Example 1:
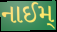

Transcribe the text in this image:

નાઈમ્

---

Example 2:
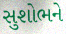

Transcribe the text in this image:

સુશોભને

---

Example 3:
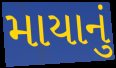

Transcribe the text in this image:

માયાનું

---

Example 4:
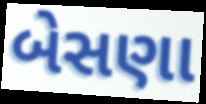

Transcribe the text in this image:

બેસણા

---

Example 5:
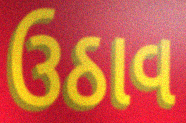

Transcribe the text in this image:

ઉઠાવ